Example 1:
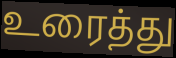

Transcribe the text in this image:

உரைத்து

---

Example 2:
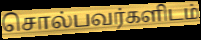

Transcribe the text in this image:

சொல்பவர்களிடம்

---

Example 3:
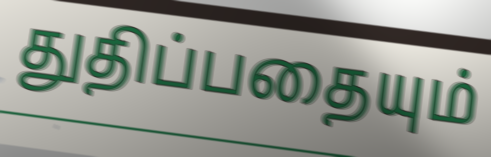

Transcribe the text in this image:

துதிப்பதையும்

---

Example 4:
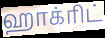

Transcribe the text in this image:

ஹாக்ரிட்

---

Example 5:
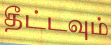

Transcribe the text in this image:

தீட்டவும்